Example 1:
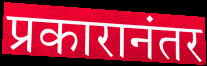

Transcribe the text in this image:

प्रकारानंतर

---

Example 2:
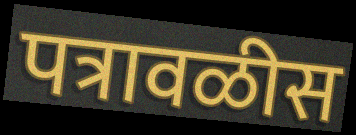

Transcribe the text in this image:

पत्रावळीस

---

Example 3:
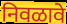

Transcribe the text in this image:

निवळावे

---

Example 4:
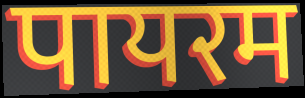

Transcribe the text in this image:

पायरम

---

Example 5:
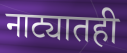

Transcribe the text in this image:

नाट्यातही